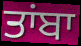
ਤਾਂਬਾ